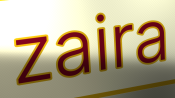
zaira